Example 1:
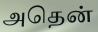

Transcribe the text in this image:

அதென்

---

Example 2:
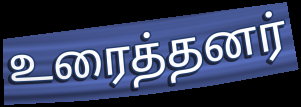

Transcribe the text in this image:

உரைத்தனர்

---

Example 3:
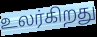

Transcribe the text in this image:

உலர்கிறது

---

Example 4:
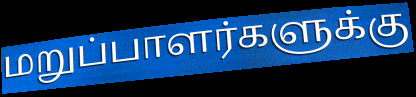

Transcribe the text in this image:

மறுப்பாளர்களுக்கு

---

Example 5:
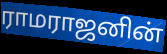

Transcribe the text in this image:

ராமராஜனின்